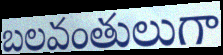
బలవంతులుగా